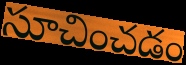
సూచించడం